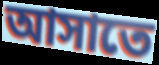
আসাতে